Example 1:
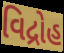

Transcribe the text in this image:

વિદ્રોહ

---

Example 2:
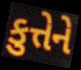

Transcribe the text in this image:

કુત્તેને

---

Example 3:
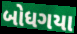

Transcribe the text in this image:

બોધગયા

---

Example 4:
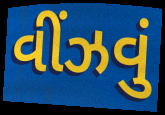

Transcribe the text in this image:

વીંઝવું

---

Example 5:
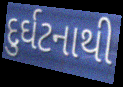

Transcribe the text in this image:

દુર્ઘટનાથી